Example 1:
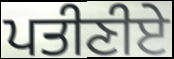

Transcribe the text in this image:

ਪਤੀਣੀਏ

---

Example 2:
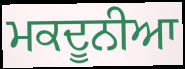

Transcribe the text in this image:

ਮਕਦੂਨੀਆ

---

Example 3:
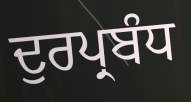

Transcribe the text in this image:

ਦੁਰਪ੍ਰਬੰਧ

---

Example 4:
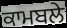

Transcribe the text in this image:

ਕਾਮਬਲੇ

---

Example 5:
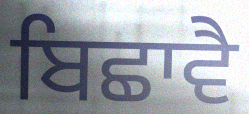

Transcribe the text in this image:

ਬਿਛਾਵੈ